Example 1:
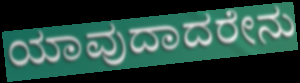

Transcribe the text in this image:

ಯಾವುದಾದರೇನು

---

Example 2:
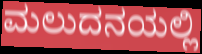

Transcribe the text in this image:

ಮಲುದನಯಲ್ಲಿ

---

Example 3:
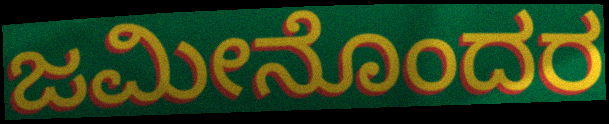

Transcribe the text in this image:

ಜಮೀನೊಂದರ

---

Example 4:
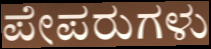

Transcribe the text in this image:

ಪೇಪರುಗಳು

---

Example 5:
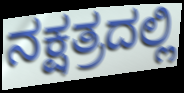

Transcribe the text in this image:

ನಕ್ಷತ್ರದಲ್ಲಿ